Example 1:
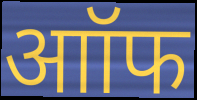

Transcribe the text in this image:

आॉफ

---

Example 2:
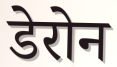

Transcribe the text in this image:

डेरोन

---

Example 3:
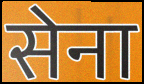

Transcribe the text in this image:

सेना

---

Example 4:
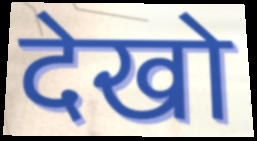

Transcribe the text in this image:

देखो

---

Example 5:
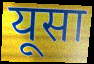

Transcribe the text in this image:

यूसा